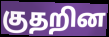
குதறின